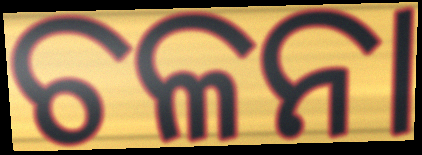
ଚଳନା